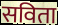
सविता